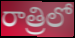
రాత్రిలో